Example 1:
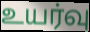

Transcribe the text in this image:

உயர்வு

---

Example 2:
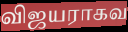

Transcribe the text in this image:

விஜயராகவ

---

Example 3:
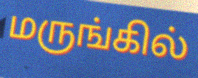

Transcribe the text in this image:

மருங்கில்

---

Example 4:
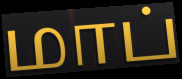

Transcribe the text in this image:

மாப்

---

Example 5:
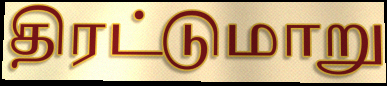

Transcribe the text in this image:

திரட்டுமாறு